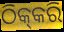
ଠିକ୍‍କରି